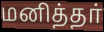
மனித்தர்